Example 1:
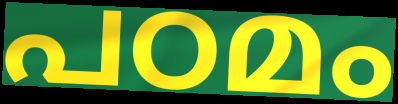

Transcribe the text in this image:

പഠമം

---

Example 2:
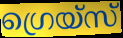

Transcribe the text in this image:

ഗ്രെയ്സ്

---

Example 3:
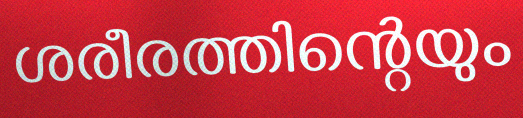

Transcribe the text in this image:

ശരീരത്തിന്റെയും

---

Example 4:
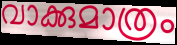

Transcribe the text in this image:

വാക്കുമാത്രം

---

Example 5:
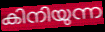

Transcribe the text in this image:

കിനിയുന്ന